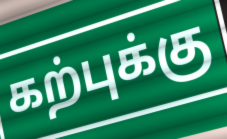
கற்புக்கு